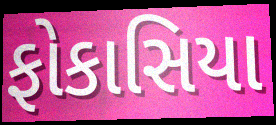
ફોકાસિયા